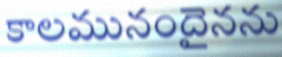
కాలమునందైనను